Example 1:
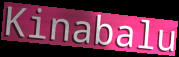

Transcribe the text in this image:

Kinabalu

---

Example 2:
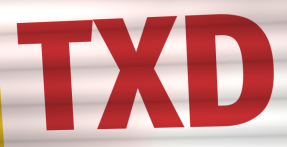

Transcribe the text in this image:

TXD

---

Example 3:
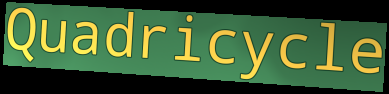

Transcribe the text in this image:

Quadricycle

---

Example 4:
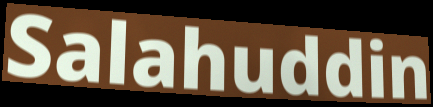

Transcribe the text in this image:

Salahuddin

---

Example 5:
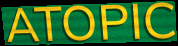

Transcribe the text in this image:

ATOPIC